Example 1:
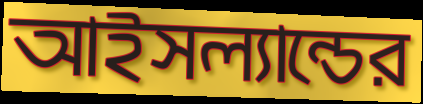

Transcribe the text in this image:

আইসল্যান্ডের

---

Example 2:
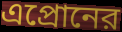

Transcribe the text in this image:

এপ্রোনের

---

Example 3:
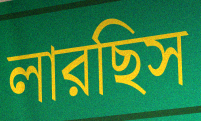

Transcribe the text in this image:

লারছিস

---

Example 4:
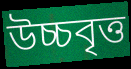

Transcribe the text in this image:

উচ্চবৃত্ত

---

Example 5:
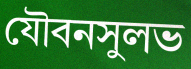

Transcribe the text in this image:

যৌবনসুলভ